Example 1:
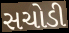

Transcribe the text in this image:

સચોડી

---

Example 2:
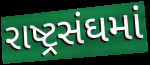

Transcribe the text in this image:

રાષ્ટ્રસંઘમાં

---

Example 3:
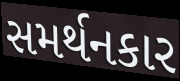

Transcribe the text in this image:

સમર્થનકાર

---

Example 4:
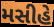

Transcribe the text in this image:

મસીહે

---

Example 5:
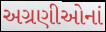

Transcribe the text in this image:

અગ્રણીઓનાં